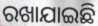
ରଖାଯାଇଛି